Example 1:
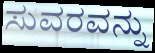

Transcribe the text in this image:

ಸುವರವನ್ನು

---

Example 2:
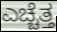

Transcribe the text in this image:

ಎಚ್ಚೆತ್ತ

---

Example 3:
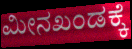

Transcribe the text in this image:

ಮೀನಖಂಡಕ್ಕೆ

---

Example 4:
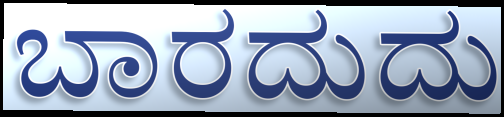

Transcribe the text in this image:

ಬಾರದುದು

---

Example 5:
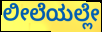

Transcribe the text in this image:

ಲೀಲೆಯಲ್ಲೇ